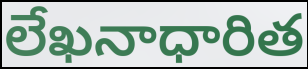
లేఖనాధారిత